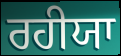
ਰਹੀਯਾ